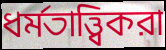
ধর্মতাত্ত্বিকরা